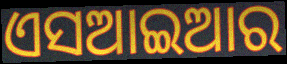
ଏସଆଇଆର